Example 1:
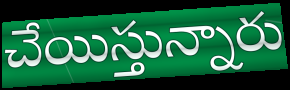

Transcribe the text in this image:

చేయిస్తున్నారు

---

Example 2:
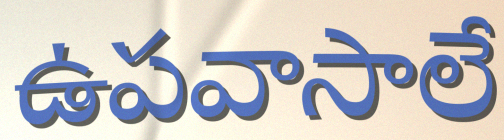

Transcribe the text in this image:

ఉపవాసాలే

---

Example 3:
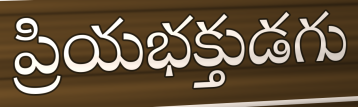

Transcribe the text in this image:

ప్రియభక్తుడగు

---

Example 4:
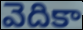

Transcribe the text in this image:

వెదికా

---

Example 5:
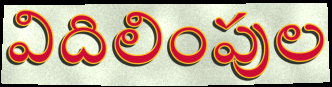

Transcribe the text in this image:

విదిలింపుల